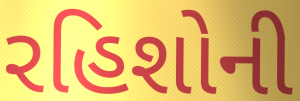
રહિશોની